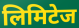
लिमिटेज